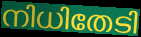
നിധിതേടി